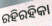
ରହିରହିକା